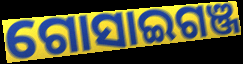
ଗୋସାଇଗଞ୍ଜ